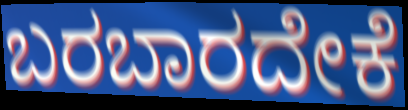
ಬರಬಾರದೇಕೆ